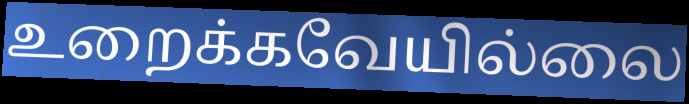
உறைக்கவேயில்லை